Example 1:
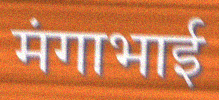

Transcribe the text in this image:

मंगाभाई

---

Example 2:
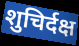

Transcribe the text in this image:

शुचिर्दक्ष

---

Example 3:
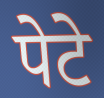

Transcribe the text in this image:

पेटे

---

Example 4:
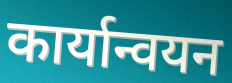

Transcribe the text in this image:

कार्यान्वयन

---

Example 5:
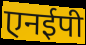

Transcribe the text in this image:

एनईपी